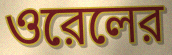
ওরেলের